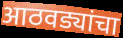
आठवड्यांचा